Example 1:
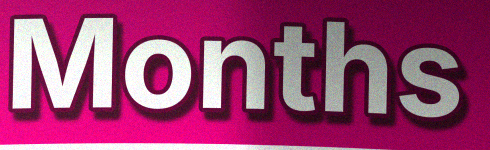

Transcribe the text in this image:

Months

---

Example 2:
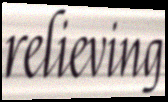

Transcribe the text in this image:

relieving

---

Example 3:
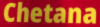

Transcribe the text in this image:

Chetana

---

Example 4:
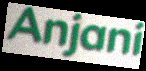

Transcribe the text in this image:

Anjani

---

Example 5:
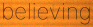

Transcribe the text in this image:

believing